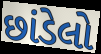
છાંડેલો